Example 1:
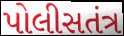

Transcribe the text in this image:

પોલીસતંત્ર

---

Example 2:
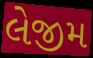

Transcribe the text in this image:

લેજીમ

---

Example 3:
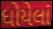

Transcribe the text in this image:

ધોયેલાં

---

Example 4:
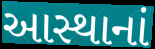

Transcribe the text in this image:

આસ્થાનાં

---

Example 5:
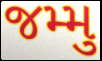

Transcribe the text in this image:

જમ્મુ